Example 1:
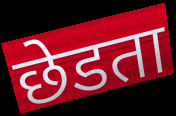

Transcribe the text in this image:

छेडता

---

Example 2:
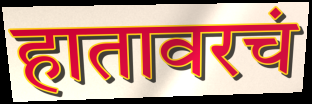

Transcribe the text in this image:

हातावरचं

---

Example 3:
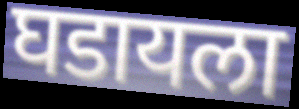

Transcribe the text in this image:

घडायला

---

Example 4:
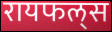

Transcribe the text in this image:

रायफल्स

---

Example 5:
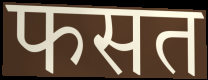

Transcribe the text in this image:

फसत